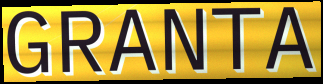
GRANTA